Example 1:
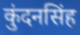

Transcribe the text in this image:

कुंदनसिंह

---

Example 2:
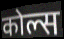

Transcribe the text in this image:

कोल्स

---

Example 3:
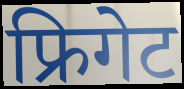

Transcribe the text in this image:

फ्रिगेट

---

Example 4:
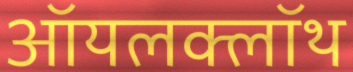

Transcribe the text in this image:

ऑयलक्लॉथ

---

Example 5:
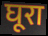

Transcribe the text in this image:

घूरा